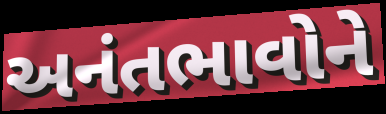
અનંતભાવોને